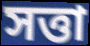
সত্তা